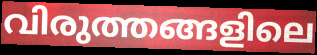
വിരുത്തങ്ങളിലെ